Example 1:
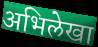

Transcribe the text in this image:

अभिलेखा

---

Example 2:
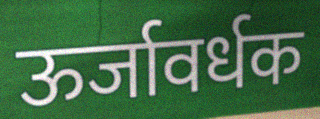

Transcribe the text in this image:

ऊर्जावर्धक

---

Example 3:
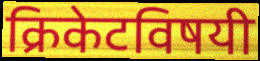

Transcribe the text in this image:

क्रिकेटविषयी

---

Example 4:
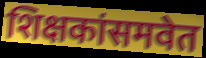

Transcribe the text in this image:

शिक्षकांसमवेत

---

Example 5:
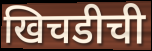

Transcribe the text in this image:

खिचडीची